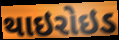
થાઇરોઇડ